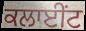
ਕਲਾਈਂਟ